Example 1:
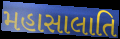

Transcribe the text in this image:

મહાસાલાતિ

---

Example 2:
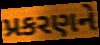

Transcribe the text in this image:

પ્રકરણને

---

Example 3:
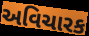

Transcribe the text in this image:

અવિચારક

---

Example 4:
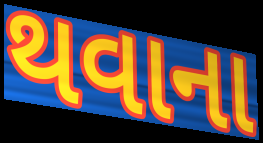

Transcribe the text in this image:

થવાના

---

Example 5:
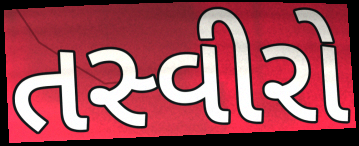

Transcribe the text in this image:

તસ્વીરો